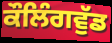
ਕੌਲਿੰਗਵੁੱਡ